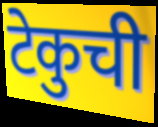
टेकुची